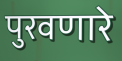
पुरवणारे